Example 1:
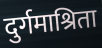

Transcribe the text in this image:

दुर्गमाश्रिता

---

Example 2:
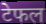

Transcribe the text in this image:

टेफल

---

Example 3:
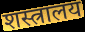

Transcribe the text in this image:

शस्त्रालय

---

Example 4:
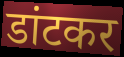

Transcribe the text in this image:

डांटकर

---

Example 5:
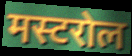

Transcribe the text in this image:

मस्टरोल